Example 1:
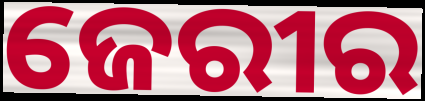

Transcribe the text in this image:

ଜେରୀର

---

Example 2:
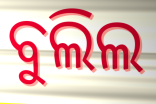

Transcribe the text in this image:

ବୁଲିଲ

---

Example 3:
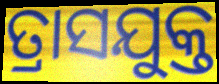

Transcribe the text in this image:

ତ୍ରାସଯୁକ୍ତ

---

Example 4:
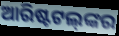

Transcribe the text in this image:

ଆରିଷ୍ଟଟଲ୍‌ଙ୍କର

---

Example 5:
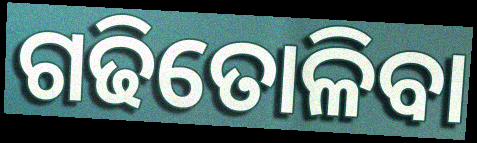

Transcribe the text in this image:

ଗଢିତୋଳିବା